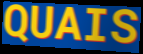
QUAIS